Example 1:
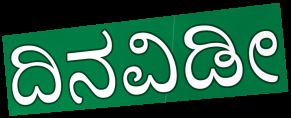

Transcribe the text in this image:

ದಿನವಿಡೀ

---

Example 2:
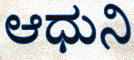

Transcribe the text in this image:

ಆಧುನಿ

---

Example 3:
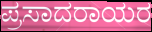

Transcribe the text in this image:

ಪ್ರಸಾದರಾಯರ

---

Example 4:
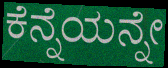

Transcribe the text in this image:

ಕೆನ್ನೆಯನ್ನೇ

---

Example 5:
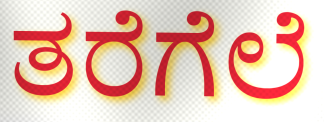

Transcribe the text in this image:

ತರೆಗೆಲೆ